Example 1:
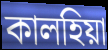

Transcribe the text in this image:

কালহিয়া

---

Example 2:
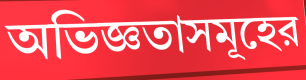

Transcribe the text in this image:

অভিজ্ঞতাসমূহের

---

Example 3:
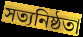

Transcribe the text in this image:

সত্যনিষ্ঠতা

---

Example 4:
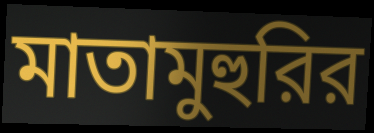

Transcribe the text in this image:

মাতামুহুরির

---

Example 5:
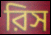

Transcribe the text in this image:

রিস